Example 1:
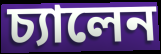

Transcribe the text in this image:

চ্যালেন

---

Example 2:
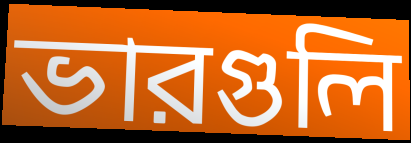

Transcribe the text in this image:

ভারগুলি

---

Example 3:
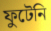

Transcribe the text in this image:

ফুটেনি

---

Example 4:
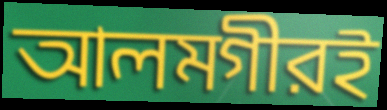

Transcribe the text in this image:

আলমগীরই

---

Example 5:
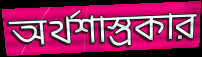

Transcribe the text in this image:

অর্থশাস্ত্রকার